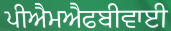
ਪੀਐਮਐਫਬੀਵਾਈ